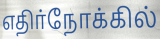
எதிர்நோக்கில்